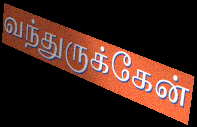
வந்துருக்கேன்